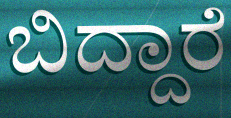
ಬಿದ್ದಾರೆ